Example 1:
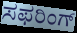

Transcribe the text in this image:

ಸಫರಿಂಗ್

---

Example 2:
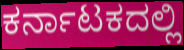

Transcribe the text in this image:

ಕರ್ನಾಟಕದಲ್ಲಿ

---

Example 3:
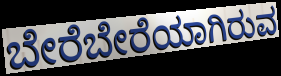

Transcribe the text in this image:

ಬೇರೆಬೇರೆಯಾಗಿರುವ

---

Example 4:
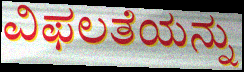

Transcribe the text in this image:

ವಿಫಲತೆಯನ್ನು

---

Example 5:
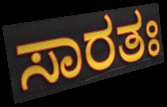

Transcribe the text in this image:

ಸಾರತಃ